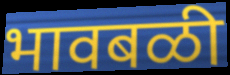
भावबळी